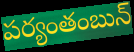
పర్యంతంబున్